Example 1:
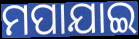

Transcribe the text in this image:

ମପାଯାଇ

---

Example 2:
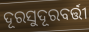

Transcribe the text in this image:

ଦୂରସୁଦୂରବର୍ତ୍ତୀ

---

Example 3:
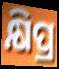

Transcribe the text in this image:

କ୍ଷିପ୍ର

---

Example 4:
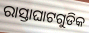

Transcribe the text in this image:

ରାସ୍ତାଘାଟଗୁଡିକ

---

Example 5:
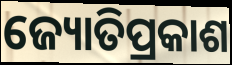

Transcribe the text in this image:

ଜ୍ୟୋତିପ୍ରକାଶ